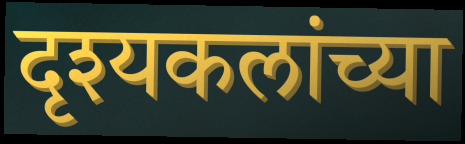
दृश्यकलांच्या